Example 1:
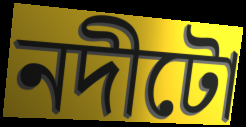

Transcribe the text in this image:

নদীটো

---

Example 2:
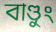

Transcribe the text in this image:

বাণ্ডুং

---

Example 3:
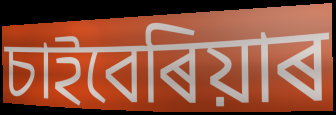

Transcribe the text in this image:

চাইবেৰিয়াৰ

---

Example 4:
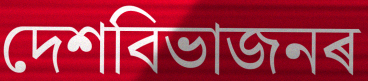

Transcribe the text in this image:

দেশবিভাজনৰ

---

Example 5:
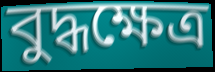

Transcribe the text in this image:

বুদ্ধক্ষেত্ৰ